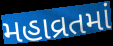
મહાવ્રતમાં